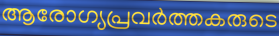
ആരോഗ്യപ്രവർത്തകരുടെ